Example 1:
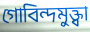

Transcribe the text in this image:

গোবিন্দমুক্ত্বা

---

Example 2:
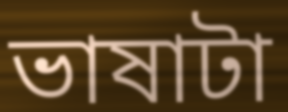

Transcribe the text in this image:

ভাষাটা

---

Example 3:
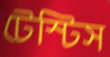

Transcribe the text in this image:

টেস্টিস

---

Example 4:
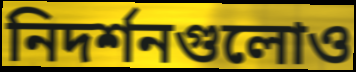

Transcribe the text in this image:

নিদর্শনগুলোও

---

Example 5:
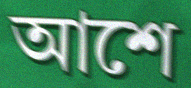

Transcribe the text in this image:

আশে